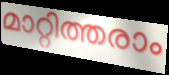
മാറ്റിത്തരാം